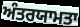
ਅੰਤਰਯਾਮਤਾ